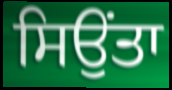
ਸਿਉਂਤਾ